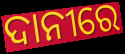
ଦାନୀରେ